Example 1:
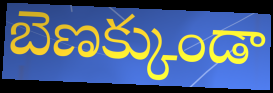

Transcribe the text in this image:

బెణక్కుండా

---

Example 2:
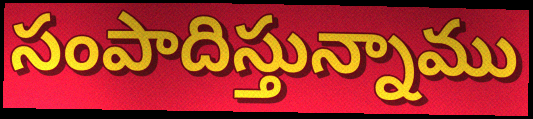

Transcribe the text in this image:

సంపాదిస్తున్నాము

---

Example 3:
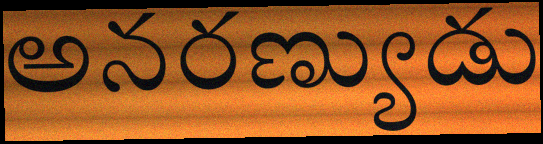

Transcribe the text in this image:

అనరణ్యుడు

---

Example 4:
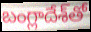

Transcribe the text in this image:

బంగ్లాదేశ్‌తో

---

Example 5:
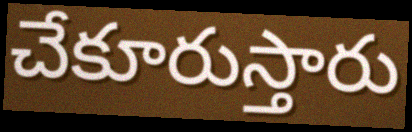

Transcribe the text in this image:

చేకూరుస్తారు